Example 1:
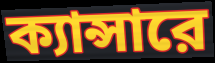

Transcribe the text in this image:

ক্যান্সারে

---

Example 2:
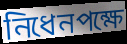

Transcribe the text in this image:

নিধেনপক্ষে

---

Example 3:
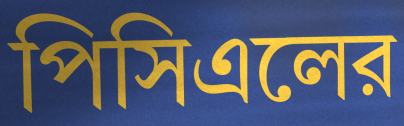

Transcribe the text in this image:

পিসিএলের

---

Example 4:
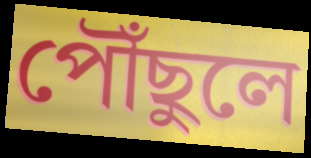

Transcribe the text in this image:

পৌঁছুলে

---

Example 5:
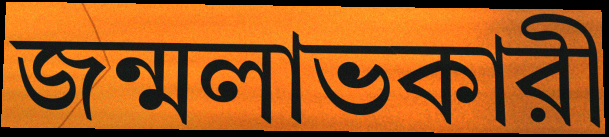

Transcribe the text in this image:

জন্মলাভকারী